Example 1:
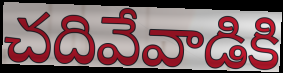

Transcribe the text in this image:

చదివేవాడికి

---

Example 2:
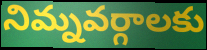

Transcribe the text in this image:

నిమ్నవర్గాలకు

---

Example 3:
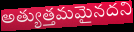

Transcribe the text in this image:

అత్యుత్తమమైనదని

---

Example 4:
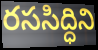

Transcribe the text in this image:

రససిద్ధిని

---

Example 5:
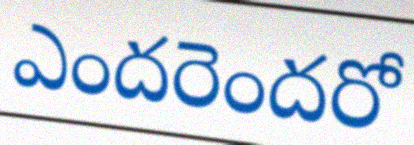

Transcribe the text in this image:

ఎందరెందరో